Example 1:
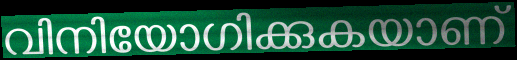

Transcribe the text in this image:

വിനിയോഗിക്കുകയാണ്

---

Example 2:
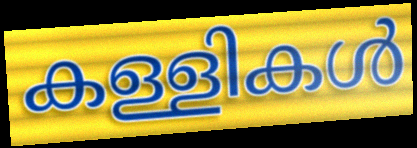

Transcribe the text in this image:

കള്ളികൾ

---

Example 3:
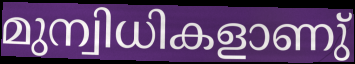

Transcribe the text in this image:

മുന്വിധികളാണു്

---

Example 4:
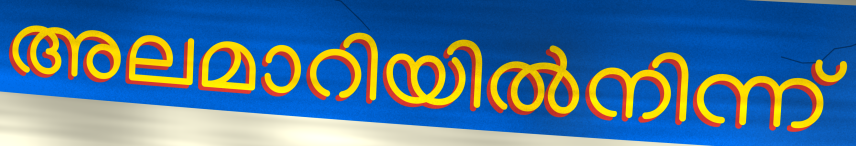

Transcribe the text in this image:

അലമാറിയിൽനിന്ന്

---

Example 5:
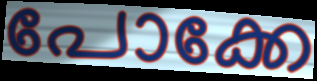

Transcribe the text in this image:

പോക്കേ